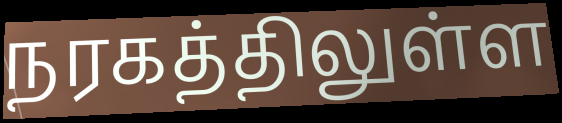
நரகத்திலுள்ள